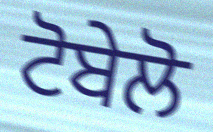
ਟੋਬੇਲੋ